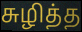
சுழித்த